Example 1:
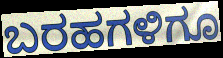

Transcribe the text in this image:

ಬರಹಗಳಿಗೂ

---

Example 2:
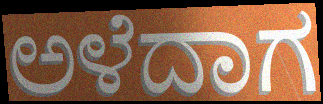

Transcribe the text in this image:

ಅಳೆದಾಗ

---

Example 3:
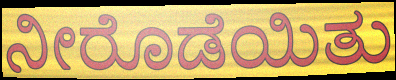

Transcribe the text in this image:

ನೀರೊಡೆಯಿತು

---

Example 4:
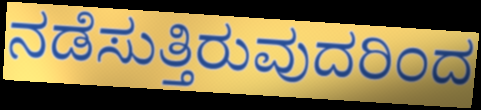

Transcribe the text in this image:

ನಡೆಸುತ್ತಿರುವುದರಿಂದ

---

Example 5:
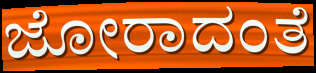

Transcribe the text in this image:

ಜೋರಾದಂತೆ